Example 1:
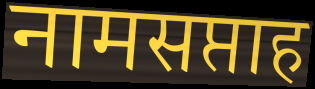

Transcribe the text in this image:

नामसप्ताह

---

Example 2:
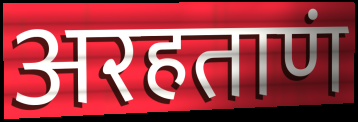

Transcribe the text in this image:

अरहताणं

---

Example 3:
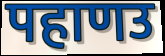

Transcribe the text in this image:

पहाणउ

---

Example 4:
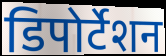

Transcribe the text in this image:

डिपोर्टेशन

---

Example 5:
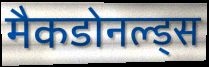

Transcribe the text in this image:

मैकडोनल्ड्स